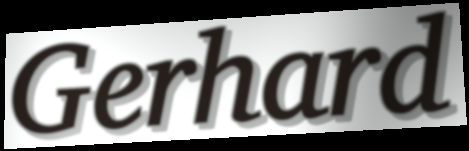
Gerhard